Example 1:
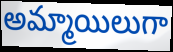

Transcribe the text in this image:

అమ్మాయిలుగా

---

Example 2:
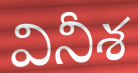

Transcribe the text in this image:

వినీశ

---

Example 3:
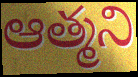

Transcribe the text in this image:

ఆత్మని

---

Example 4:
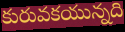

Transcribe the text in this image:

కురువకయున్నది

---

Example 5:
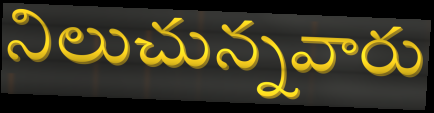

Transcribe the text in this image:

నిలుచున్నవారు